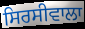
ਸਿਰਸੀਵਾਲਾ